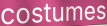
costumes